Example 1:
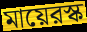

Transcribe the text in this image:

মায়েরস্ক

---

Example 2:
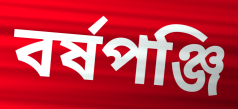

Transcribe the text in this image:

বর্ষপঞ্জি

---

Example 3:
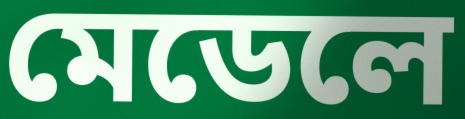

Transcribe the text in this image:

মেডেলে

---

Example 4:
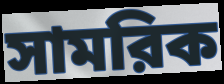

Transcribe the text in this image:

সামরিক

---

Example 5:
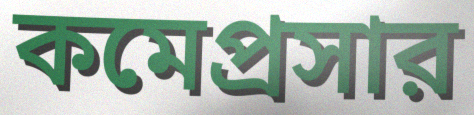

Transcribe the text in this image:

কমেপ্রসার